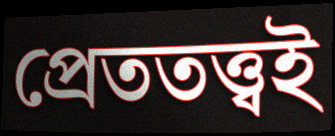
প্রেততত্ত্বই